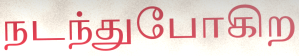
நடந்துபோகிற